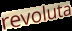
revoluta